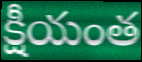
క్షీయంత